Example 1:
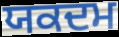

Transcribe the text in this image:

ਯਕਦਮ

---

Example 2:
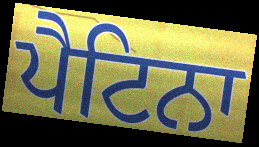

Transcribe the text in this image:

ਪੈਟਿਨਾ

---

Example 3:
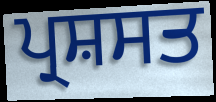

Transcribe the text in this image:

ਪ੍ਰਸ਼ਸਤ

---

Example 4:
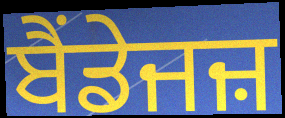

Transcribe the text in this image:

ਬੈਂਡੇਜਜ਼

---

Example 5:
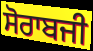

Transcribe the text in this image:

ਸੋਰਾਬਜੀ